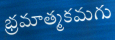
భ్రమాత్మకమగు